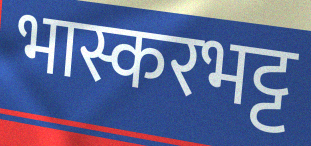
भास्करभट्ट